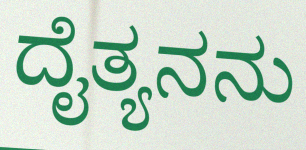
ದೈತ್ಯನನು